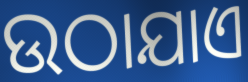
ଉଠାଯାଏ